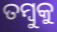
ତମ୍ବୁକୁ